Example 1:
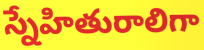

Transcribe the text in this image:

స్నేహితురాలిగా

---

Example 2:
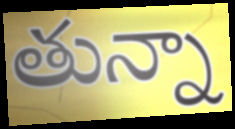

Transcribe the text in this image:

తున్నా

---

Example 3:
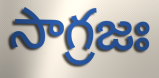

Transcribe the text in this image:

సాగ్రజః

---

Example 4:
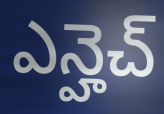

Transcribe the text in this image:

ఎన్హెచ్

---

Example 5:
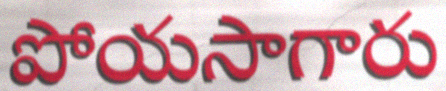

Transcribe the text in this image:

పోయసాగారు